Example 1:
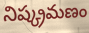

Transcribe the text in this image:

నిష్క్రమణం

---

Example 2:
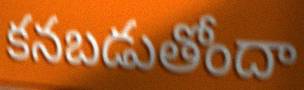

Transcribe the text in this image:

కనబడుతోందా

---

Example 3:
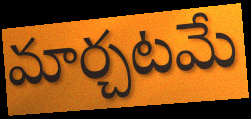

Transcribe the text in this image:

మార్చటమే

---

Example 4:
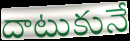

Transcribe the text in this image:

దాటుకునే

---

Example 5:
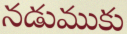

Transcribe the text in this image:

నడుముకు